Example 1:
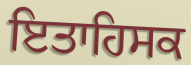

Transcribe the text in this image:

ਇਤਾਹਿਸਕ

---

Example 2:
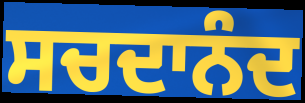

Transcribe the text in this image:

ਸਚਦਾਨੰਦ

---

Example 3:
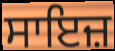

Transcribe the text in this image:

ਸਾਇਜ਼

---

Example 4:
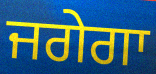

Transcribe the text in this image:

ਜਗੇਗਾ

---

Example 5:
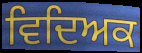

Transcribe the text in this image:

ਵਿਦਿਅਕ